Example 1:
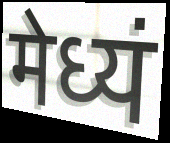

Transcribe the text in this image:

मेध्यं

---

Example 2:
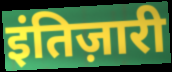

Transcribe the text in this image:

इंतिज़ारी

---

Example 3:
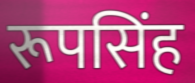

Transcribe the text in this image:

रूपसिंह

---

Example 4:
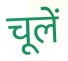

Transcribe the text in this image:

चूलें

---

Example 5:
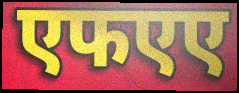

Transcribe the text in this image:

एफएए